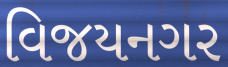
વિજયનગર